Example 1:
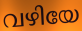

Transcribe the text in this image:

വഴിയേ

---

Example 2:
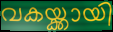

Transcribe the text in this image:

വകയ്ക്കായി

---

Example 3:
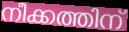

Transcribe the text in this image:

നീക്കത്തിന്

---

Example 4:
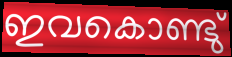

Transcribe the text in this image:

ഇവകൊണ്ടു്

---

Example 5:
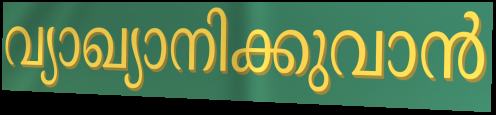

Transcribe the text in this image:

വ്യാഖ്യാനിക്കുവാൻ